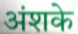
अंशके